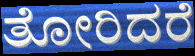
ತೋರಿದರೆ